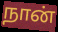
நான்